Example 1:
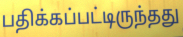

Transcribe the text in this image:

பதிக்கப்பட்டிருந்தது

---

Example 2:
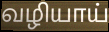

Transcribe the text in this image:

வழியாய்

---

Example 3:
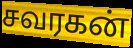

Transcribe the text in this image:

சவரகன்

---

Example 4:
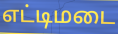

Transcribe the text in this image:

எட்டிமடை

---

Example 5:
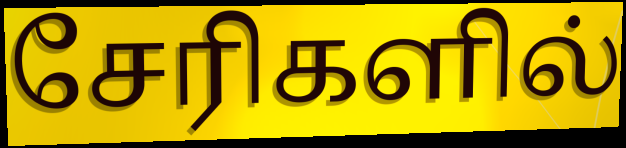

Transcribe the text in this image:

சேரிகளில்